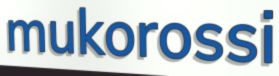
mukorossi